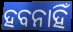
ହବନାହିଁ